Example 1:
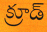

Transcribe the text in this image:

క్రూడ్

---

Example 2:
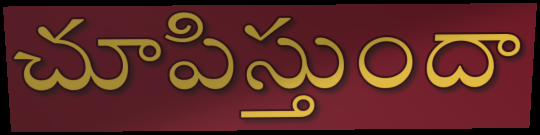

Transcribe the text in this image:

చూపిస్తుందా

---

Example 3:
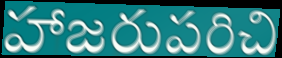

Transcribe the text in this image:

హాజరుపరిచి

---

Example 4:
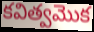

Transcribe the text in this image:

కవిత్వమొక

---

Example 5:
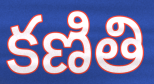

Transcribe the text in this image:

కణితి